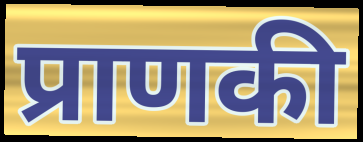
प्राणकी